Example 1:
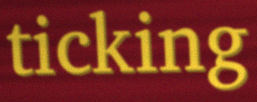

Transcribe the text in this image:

ticking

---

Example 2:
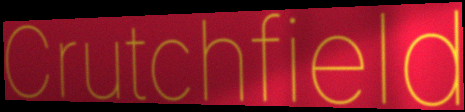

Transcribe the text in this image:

Crutchfield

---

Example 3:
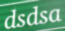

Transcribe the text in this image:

dsdsa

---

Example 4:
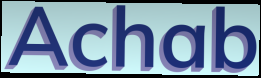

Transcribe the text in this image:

Achab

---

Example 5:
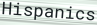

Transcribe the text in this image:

Hispanics